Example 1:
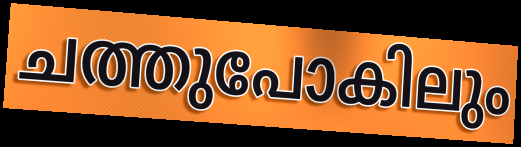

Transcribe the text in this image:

ചത്തുപോകിലും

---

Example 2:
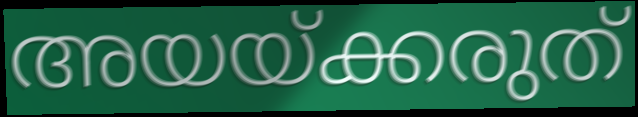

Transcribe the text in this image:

അയയ്ക്കരുത്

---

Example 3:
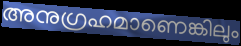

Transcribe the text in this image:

അനുഗ്രഹമാണെങ്കിലും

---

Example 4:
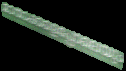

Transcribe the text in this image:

മാതാക്കളെപ്പോലെയും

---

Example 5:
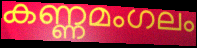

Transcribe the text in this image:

കണ്ണമംഗലം